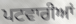
ਪਟਵਾਰੀਆਂ